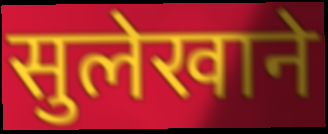
सुलेखाने